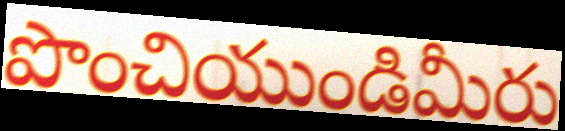
పొంచియుండిమీరు